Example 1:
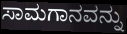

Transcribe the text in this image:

ಸಾಮಗಾನವನ್ನು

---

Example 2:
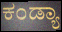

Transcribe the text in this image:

ಕಂಡ್ಯಾ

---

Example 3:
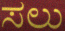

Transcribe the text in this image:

ಸಲು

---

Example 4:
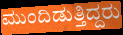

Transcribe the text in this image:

ಮುಂದಿಡುತ್ತಿದ್ದರು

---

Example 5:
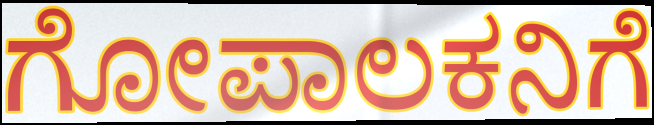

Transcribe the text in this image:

ಗೋಪಾಲಕನಿಗೆ